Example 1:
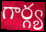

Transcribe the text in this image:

గార్గ్య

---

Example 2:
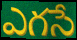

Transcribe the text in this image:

ఎగసే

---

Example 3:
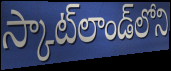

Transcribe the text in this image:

స్కాట్‌లాండ్‌లోని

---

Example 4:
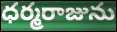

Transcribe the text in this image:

ధర్మరాజును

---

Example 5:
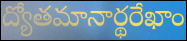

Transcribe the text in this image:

ద్యోతమానార్థరేఖాం